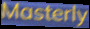
Masterly